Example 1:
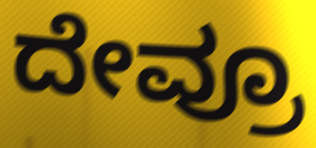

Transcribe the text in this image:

ದೇವ್ರೂ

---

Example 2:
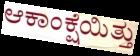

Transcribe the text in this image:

ಆಕಾಂಕ್ಷೆಯಿತ್ತು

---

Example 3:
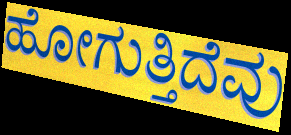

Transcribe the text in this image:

ಹೋಗುತ್ತಿದೆವು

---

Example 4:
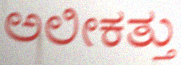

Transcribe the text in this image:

ಅಲೀಕತ್ತು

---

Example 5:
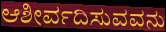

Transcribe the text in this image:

ಆಶೀರ್ವದಿಸುವವನು